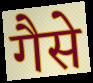
गैसे